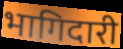
भागिदारी